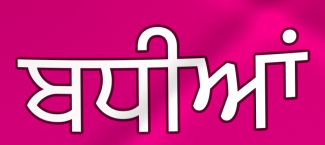
ਬਧੀਆਂ